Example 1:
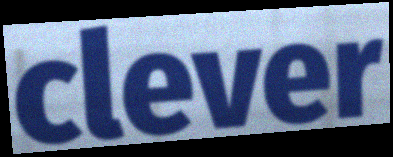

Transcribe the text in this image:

clever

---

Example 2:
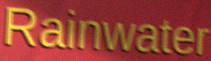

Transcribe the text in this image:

Rainwater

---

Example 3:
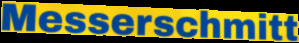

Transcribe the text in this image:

Messerschmitt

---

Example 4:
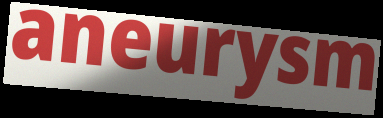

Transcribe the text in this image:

aneurysm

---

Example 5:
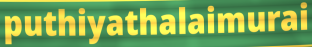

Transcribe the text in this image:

puthiyathalaimurai